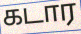
கடார